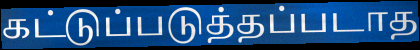
கட்டுப்படுத்தப்படாத